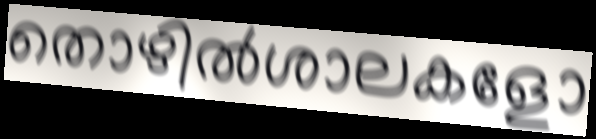
തൊഴിൽശാലകളോ